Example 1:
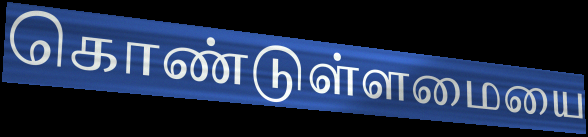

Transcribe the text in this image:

கொண்டுள்ளமையை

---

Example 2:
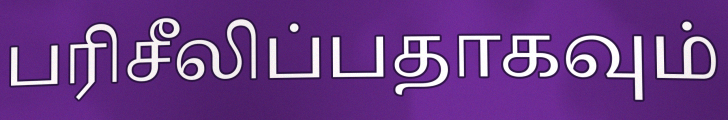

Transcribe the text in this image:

பரிசீலிப்பதாகவும்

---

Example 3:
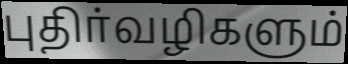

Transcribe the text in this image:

புதிர்வழிகளும்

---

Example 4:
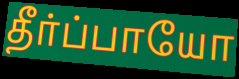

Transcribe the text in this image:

தீர்ப்பாயோ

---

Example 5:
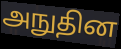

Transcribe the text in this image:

அநுதின